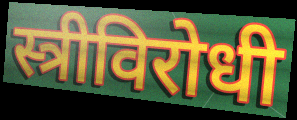
स्त्रीविरोधी